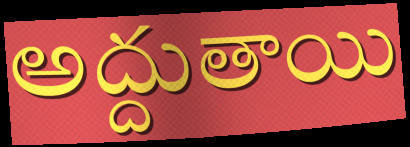
అద్దుతాయి